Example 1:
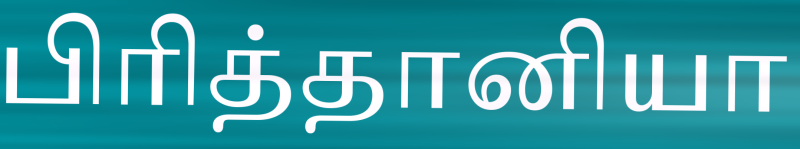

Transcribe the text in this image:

பிரித்தானியா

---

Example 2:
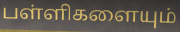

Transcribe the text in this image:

பள்ளிகளையும்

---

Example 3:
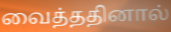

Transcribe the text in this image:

வைத்ததினால்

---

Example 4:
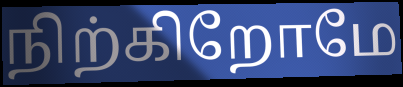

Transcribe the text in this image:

நிற்கிறோமே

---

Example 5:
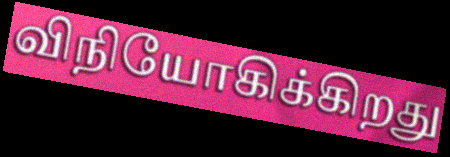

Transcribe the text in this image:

விநியோகிக்கிறது